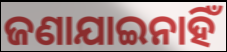
ଜଣାଯାଇନାହିଁ